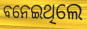
ବନେଇଥିଲେ